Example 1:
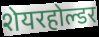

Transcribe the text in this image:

शेयरहोल्डर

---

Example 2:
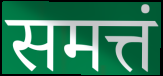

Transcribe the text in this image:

समत्तं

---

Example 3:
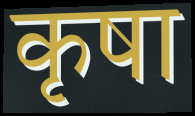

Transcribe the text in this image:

कृषा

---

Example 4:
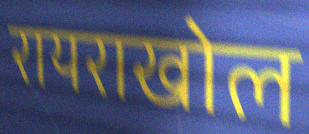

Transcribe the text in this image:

रायराखोल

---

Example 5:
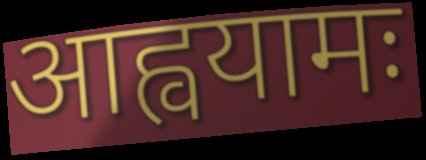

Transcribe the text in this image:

आह्वयामः